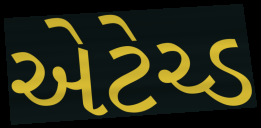
એટેચ્ડ